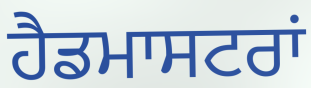
ਹੈਡਮਾਸਟਰਾਂ